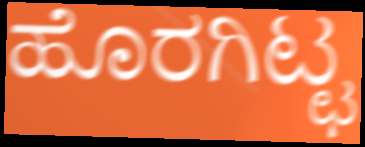
ಹೊರಗಿಟ್ಟ